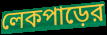
লেকপাড়ের